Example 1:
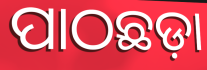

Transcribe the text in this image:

ପାଠଛଡ଼ା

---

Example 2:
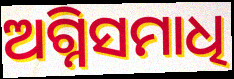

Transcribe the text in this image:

ଅଗ୍ନିସମାଧି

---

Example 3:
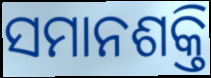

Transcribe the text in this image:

ସମାନଶକ୍ତି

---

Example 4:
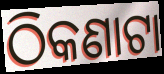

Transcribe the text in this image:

ଠିକଣାଟା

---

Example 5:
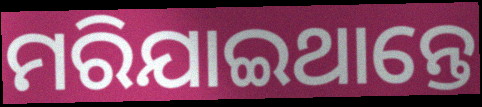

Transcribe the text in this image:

ମରିଯାଇଥାନ୍ତେ